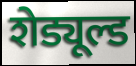
शेड्यूल्ड